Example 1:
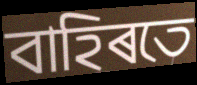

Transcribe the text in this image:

বাহিৰতে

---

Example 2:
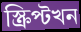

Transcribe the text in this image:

স্ক্ৰিপ্টখন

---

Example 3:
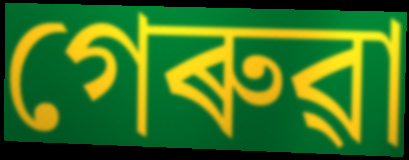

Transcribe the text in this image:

গেৰুৱা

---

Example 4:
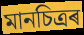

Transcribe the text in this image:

মানচিত্ৰৰ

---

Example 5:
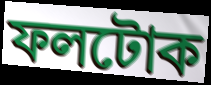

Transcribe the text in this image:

ফলটোক